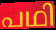
പഥി